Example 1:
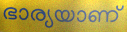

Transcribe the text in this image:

ഭാര്യയാണ്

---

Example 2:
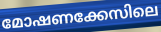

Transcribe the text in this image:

മോഷണക്കേസിലെ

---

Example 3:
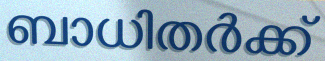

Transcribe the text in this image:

ബാധിതർക്ക്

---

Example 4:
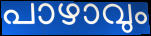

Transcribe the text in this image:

പാഴാവും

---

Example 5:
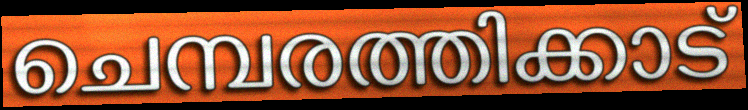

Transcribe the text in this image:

ചെമ്പരത്തിക്കാട്